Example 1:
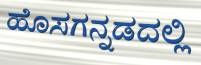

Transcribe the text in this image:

ಹೊಸಗನ್ನಡದಲ್ಲಿ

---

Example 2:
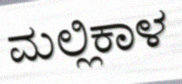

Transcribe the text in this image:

ಮಲ್ಲಿಕಾಳ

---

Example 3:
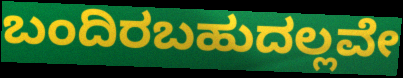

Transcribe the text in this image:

ಬಂದಿರಬಹುದಲ್ಲವೇ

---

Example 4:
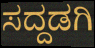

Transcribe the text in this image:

ಸದ್ದಡಗಿ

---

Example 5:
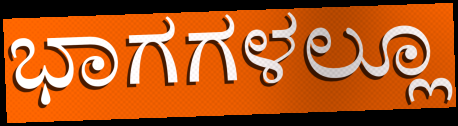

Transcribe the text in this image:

ಭಾಗಗಳಲ್ಲೂ